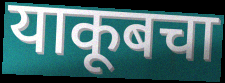
याकूबचा